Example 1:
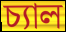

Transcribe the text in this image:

চ্যাল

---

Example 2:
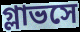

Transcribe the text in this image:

গ্লাভসে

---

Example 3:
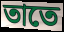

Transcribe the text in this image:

তাতে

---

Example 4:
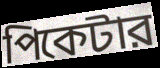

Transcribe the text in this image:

পিকেটার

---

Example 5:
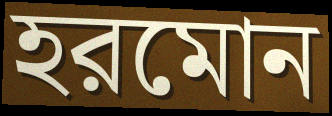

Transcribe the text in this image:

হরমোন